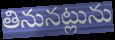
తినునట్లును